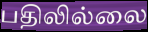
பதிலில்லை